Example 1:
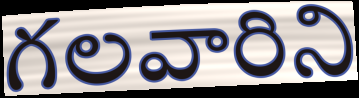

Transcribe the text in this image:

గలవారిని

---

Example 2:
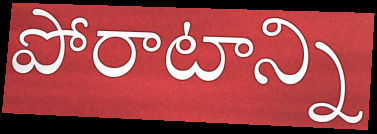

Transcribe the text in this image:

పోరాటాన్ని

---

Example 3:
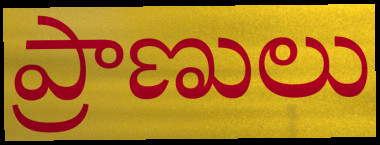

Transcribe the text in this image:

ప్రాణులు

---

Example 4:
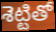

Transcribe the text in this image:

శెట్టితో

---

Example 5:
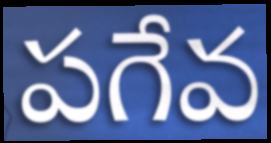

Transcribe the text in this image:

పగేవ